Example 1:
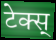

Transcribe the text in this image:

टेक्स्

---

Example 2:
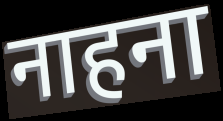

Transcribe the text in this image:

नाहना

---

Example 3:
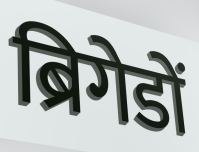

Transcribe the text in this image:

ब्रिगेडों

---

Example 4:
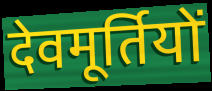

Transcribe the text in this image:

देवमूर्तियों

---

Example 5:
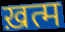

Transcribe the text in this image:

ख़त्‍म